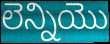
లెన్నియొ